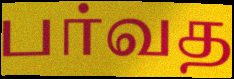
பர்வத